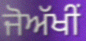
ਜੋਅੱਖੀਂ